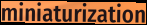
miniaturization